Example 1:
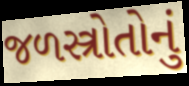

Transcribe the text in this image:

જળસ્ત્રોતોનું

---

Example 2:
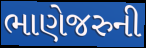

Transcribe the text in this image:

ભાણેજરુની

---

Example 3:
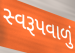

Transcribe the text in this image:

સ્વરૂપવાળું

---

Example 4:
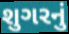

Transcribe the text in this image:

શુગરનું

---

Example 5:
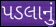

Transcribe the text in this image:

પડલાનું